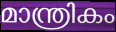
മാന്ത്രികം